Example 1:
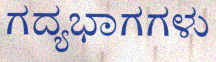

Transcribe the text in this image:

ಗದ್ಯಭಾಗಗಳು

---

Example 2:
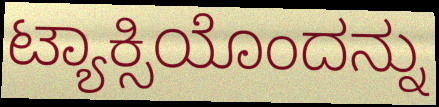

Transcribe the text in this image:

ಟ್ಯಾಕ್ಸಿಯೊಂದನ್ನು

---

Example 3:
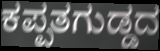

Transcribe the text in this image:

ಕಪ್ಪತಗುಡ್ಡದ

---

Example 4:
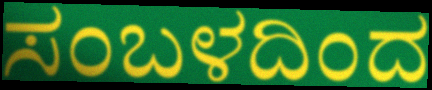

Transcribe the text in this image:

ಸಂಬಳದಿಂದ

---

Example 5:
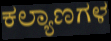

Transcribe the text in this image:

ಕಲ್ಯಾಣಗಳ